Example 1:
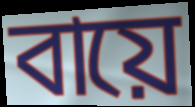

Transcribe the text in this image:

বায়ে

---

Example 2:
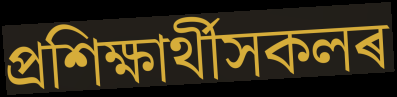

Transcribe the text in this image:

প্ৰশিক্ষাৰ্থীসকলৰ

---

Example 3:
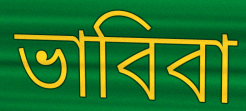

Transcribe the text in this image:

ভাবিবা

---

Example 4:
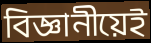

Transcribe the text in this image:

বিজ্ঞানীয়েই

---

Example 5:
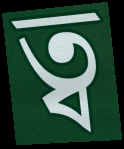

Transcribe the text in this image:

ত্ব